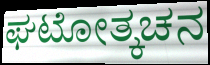
ಘಟೋತ್ಕಚನ